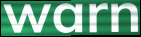
warn